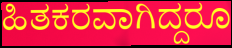
ಹಿತಕರವಾಗಿದ್ದರೂ